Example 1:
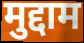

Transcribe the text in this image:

मुद्दाम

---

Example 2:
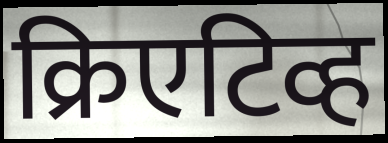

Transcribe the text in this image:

क्रिएटिव्ह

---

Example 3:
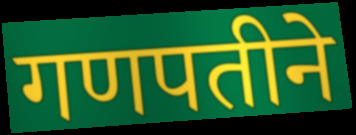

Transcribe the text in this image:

गणपतीने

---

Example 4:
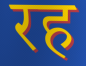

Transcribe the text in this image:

रह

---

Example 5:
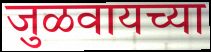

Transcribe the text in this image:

जुळवायच्या